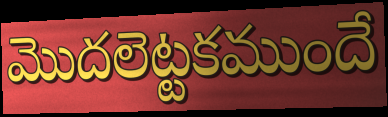
మొదలెట్టకముందే